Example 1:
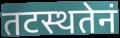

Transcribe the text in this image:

तटस्थतेनं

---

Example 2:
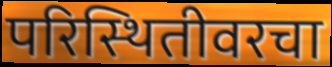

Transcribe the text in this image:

परिस्थितीवरचा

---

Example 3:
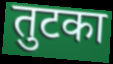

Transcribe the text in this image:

तुटका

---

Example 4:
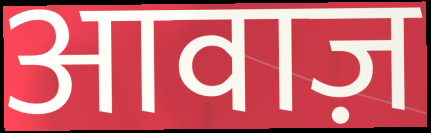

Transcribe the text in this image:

आवाज़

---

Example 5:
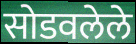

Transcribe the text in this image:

सोडवलेले